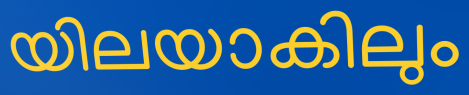
യിലയാകിലും